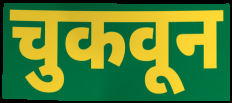
चुकवून